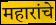
महारांचे